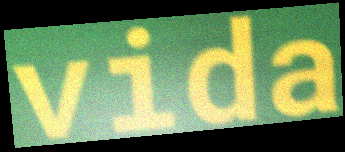
vida